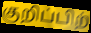
குறிப்பிற்